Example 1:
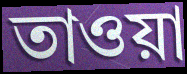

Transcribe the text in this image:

তাওয়া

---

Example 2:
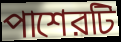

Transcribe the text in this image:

পাশেরটি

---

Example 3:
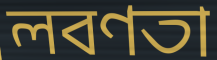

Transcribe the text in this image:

লবণতা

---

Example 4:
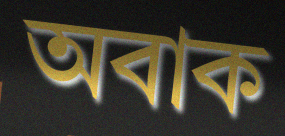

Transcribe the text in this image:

অবাক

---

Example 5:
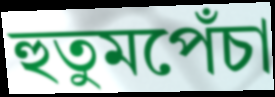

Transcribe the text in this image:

হুতুমপেঁচা